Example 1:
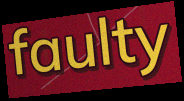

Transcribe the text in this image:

faulty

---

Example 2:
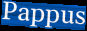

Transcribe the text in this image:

Pappus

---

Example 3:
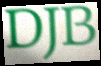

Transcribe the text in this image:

DJB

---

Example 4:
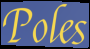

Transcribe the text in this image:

Poles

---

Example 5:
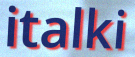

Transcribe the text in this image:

italki